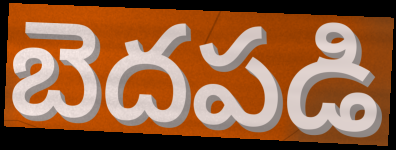
బెదపడి